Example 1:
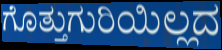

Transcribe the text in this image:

ಗೊತ್ತುಗುರಿಯಿಲ್ಲದ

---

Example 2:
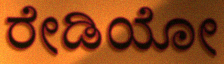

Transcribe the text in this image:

ರೇಡಿಯೋ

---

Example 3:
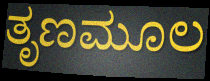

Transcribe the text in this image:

ತೃಣಮೂಲ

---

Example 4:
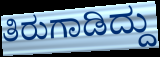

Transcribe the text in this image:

ತಿರುಗಾಡಿದ್ದು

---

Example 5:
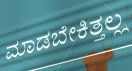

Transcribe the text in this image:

ಮಾಡಬೇಕಿತ್ತಲ್ಲ